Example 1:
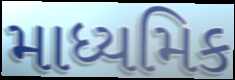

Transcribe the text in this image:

માધ્યમિક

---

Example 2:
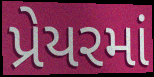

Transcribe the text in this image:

પ્રેયરમાં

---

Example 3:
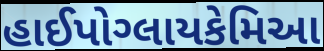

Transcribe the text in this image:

હાઈપોગ્લાયકેમિઆ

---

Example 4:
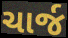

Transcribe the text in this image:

ચાર્જ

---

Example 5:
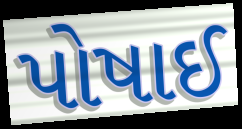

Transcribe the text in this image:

પોષાઈ